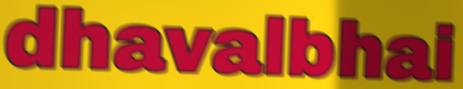
dhavalbhai